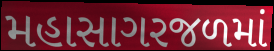
મહાસાગરજળમાં